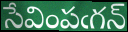
సేవింపఁగన్